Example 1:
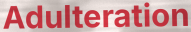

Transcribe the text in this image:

Adulteration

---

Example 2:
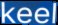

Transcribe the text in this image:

keel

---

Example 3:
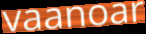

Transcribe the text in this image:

vaanoar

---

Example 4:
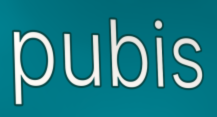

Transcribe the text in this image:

pubis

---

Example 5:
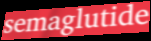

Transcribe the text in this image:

semaglutide